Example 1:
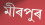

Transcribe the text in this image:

মীৰপুৰ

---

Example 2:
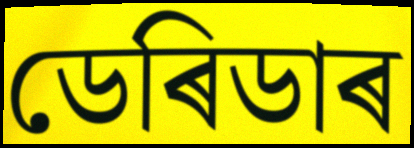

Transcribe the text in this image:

ডেৰিডাৰ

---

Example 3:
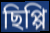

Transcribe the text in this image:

ছিপ্পি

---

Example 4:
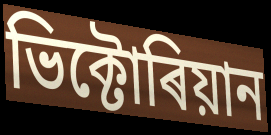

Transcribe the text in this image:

ভিক্টোৰিয়ান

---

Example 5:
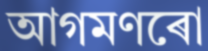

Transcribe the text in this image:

আগমণৰো